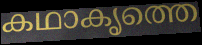
കഥാകൃത്തെ